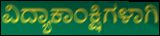
ವಿದ್ಯಾಕಾಂಕ್ಷಿಗಳಾಗಿ